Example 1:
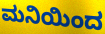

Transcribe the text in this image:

ಮನಿಯಿಂದ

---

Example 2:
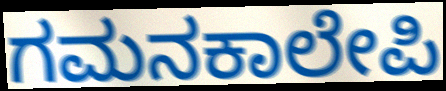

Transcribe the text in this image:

ಗಮನಕಾಲೇಪಿ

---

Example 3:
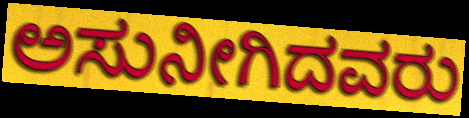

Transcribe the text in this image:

ಅಸುನೀಗಿದವರು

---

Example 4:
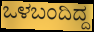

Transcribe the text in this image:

ಒಳಬಂದಿದ್ದ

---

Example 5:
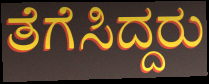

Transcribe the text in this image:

ತೆಗೆಸಿದ್ದರು